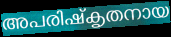
അപരിഷ്‌കൃതനായ